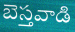
బెస్తవాడి